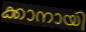
ക്കാനായി